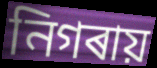
নিগৰায়